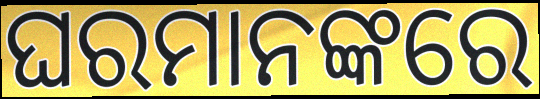
ଘରମାନଙ୍କରେ